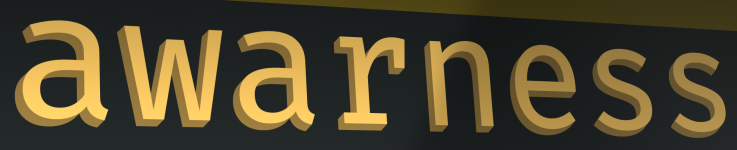
awarness